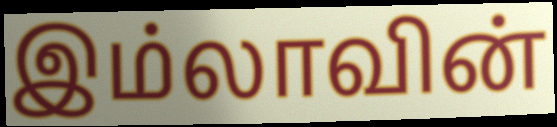
இம்லாவின்